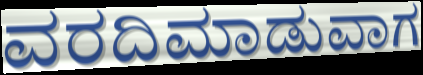
ವರದಿಮಾಡುವಾಗ